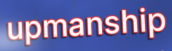
upmanship